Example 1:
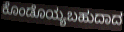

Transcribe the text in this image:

ಕೊಂಡೊಯ್ಯಬಹುದಾದ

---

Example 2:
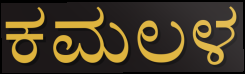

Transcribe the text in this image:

ಕಮಲಳ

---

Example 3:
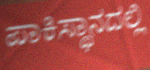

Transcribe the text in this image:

ಪಾಕಿಸ್ಥಾನದಲ್ಲಿ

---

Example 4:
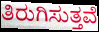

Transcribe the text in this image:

ತಿರುಗಿಸುತ್ತವೆ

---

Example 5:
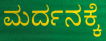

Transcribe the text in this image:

ಮರ್ದನಕ್ಕೆ